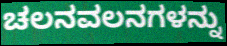
ಚಲನವಲನಗಳನ್ನು